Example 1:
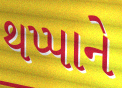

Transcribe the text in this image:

થપ્પાને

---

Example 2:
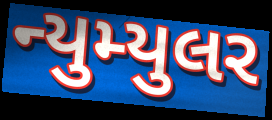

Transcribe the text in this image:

ન્યુમ્યુલર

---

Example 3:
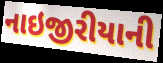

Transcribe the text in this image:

નાઇજીરીયાની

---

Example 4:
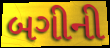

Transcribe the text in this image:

બગીની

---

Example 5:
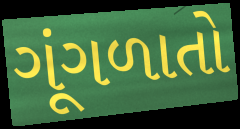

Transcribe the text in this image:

ગૂંગળાતો